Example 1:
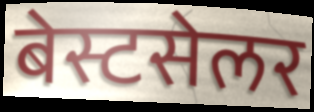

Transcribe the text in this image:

बेस्टसेलर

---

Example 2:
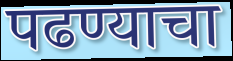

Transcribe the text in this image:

पढण्याचा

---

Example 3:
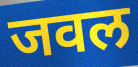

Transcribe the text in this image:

जवल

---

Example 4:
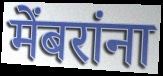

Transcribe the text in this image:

मेंबरांना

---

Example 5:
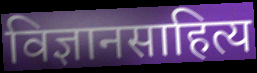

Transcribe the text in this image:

विज्ञानसाहित्य